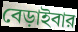
বেড়াইবার